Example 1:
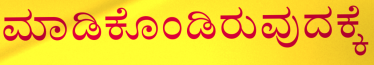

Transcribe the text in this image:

ಮಾಡಿಕೊಂಡಿರುವುದಕ್ಕೆ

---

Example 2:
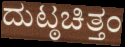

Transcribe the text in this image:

ದುಟ್ಠಚಿತ್ತಂ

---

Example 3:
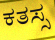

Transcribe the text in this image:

ಕತಸ್ಸ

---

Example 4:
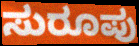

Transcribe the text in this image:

ಸುರೂಪು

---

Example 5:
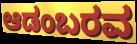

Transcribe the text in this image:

ಆಡಂಬರವ